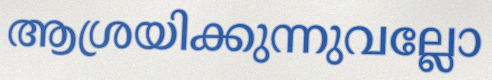
ആശ്രയിക്കുന്നുവല്ലോ